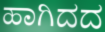
ಹಾಗಿದದ